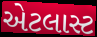
એટલાસ્ટ